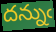
దన్నుఁ